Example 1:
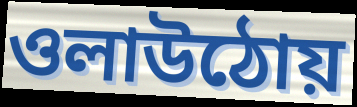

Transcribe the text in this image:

ওলাউঠোয়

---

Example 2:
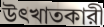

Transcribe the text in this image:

উৎখাতকারী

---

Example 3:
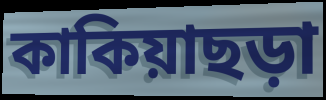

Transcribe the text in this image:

কাকিয়াছড়া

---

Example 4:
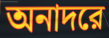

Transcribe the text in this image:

অনাদরে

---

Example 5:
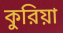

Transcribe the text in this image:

কুরিয়া